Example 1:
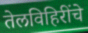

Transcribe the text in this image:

तेलविहिरींचे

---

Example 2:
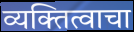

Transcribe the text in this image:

व्यक्तित्वाचा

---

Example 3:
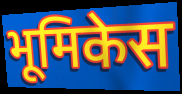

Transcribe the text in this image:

भूमिकेस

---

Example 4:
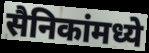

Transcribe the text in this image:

सैनिकांमध्ये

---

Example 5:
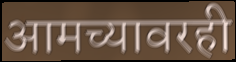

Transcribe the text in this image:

आमच्यावरही